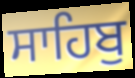
ਸਾਹਿਬੁ